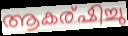
ആകര്ഷിച്ചു